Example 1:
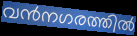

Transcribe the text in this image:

വൻനഗരത്തിൽ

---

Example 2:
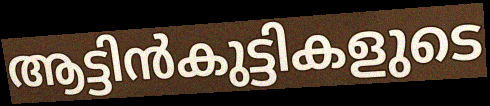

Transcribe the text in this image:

ആട്ടിൻകുട്ടികളുടെ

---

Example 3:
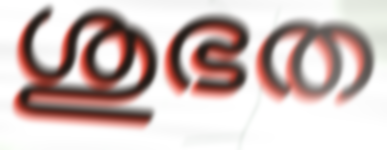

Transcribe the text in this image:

ശുഭത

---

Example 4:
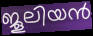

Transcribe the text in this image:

ജൂലിയൻ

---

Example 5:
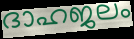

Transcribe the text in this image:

ദാഹജലം